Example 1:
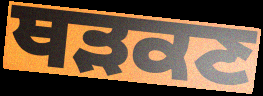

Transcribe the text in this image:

ਥੜਕਣ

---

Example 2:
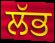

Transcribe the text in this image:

ਲੱਭ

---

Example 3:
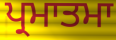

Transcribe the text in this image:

ਪ੍ਰਮਾਤਮਾ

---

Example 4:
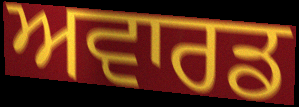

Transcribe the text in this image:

ਅਵਾਰਡ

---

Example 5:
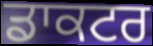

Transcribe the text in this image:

ਡਾਕਟਰ